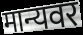
मान्‍यवर